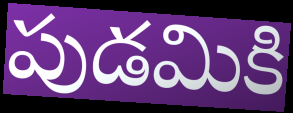
పుడమికి